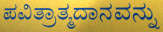
ಪವಿತ್ರಾತ್ಮದಾನವನ್ನು